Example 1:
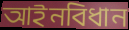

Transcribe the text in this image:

আইনবিধান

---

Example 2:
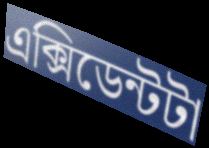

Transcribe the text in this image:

এক্সিডেন্টটা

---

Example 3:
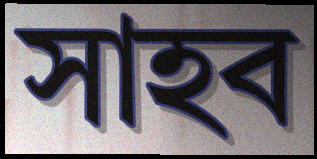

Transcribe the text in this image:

সাহব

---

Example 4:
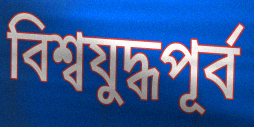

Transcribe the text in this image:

বিশ্বযুদ্ধপূর্ব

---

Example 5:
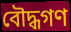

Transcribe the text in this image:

বৌদ্ধগণ